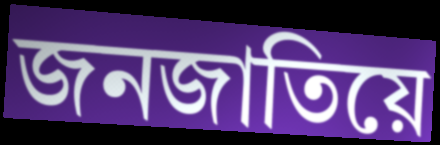
জনজাতিয়ে